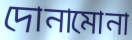
দোনামোনা